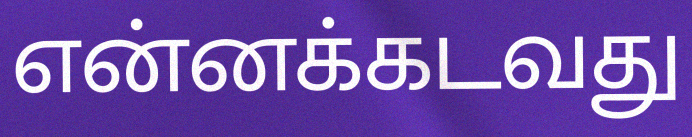
என்னக்கடவது